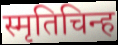
स्मृतिचिन्ह